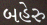
બહેરુ